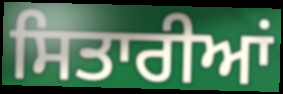
ਸਿਤਾਰੀਆਂ